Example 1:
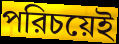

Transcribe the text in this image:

পরিচয়েই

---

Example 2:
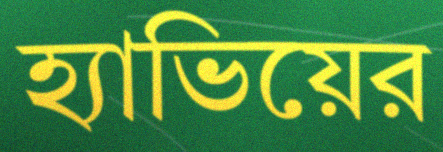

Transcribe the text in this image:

হ্যাভিয়ের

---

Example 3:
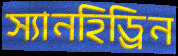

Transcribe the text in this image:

স্যানহিড্রিন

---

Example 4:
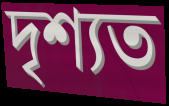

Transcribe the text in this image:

দৃশ্যত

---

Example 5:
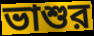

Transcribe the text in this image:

ভাশুর